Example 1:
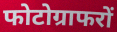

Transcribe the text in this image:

फोटोग्राफरों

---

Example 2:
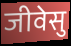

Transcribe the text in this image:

जीवेसु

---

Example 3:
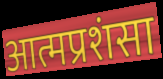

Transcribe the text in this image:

आत्मप्रशंसा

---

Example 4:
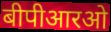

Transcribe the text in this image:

बीपीआरओ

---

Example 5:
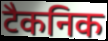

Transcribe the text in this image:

टैकनिक